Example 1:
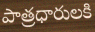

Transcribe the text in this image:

పాత్రధారులకి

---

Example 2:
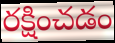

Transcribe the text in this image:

రక్షించడం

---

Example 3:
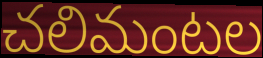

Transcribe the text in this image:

చలిమంటల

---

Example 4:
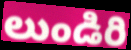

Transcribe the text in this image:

లుండిరి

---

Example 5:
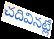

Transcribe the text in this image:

చదివినట్లే